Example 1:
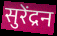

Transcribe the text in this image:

सुरेंद्रन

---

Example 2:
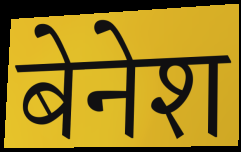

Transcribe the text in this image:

बेनेश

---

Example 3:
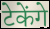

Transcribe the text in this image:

टेकेंगे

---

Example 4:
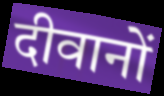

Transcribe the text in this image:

दीवानों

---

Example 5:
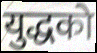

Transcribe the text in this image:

युद्धको